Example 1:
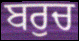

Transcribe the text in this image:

ਬਰੁਚ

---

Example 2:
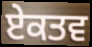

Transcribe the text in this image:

ਏਕਤਵ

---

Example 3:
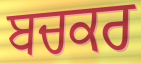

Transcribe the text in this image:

ਬਚਕਰ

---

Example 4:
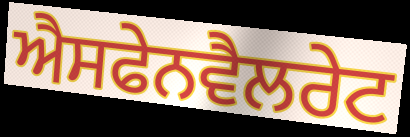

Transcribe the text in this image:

ਐਸਫੇਨਵੈਲਰੇਟ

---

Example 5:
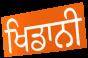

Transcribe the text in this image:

ਖਿਡਾਨੀ